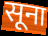
सूना